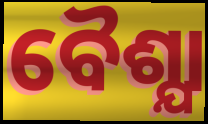
ବୈଶ୍ଯା